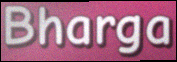
Bharga